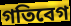
গতিবেগ